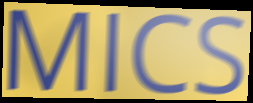
MICS